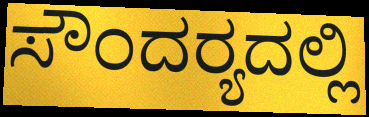
ಸೌಂದರ‍್ಯದಲ್ಲಿ